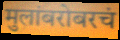
मुलांबरोबरचं